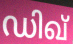
ഡിഖ്